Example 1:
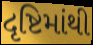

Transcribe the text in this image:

દૃષ્ટિમાંથી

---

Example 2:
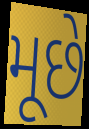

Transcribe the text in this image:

મૂછે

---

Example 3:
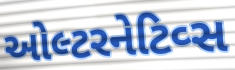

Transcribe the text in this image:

ઓલ્ટરનેટિવ્સ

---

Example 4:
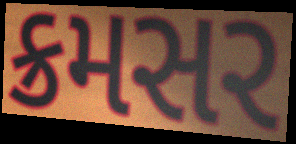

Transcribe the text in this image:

ક્રમસર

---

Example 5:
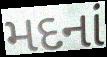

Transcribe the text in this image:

મદનાં